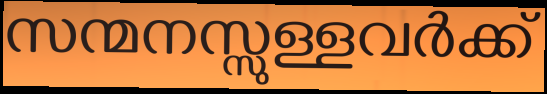
സന്മനസ്സുള്ളവർക്ക്